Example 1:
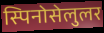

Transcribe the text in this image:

स्पिनोसेलुलर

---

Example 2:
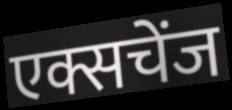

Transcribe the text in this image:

एक्सचेंज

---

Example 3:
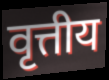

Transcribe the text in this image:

वृत्तीय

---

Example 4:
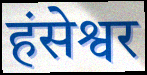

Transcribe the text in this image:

हंसेश्वर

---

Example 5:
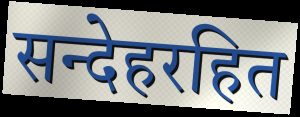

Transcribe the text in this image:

सन्देहरहित